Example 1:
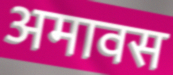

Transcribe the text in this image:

अमावस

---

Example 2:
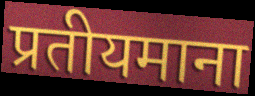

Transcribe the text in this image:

प्रतीयमाना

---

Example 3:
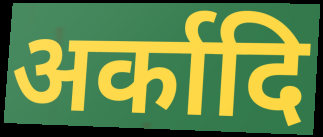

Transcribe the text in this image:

अर्कादि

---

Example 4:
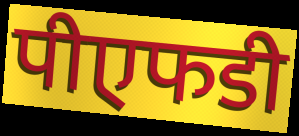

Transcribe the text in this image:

पीएफडी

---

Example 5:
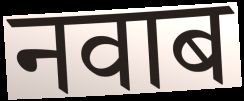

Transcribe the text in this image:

नवाब